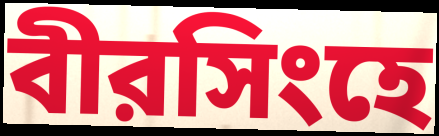
বীরসিংহে